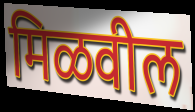
मिळवील